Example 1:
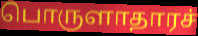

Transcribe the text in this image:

பொருளாதாரச்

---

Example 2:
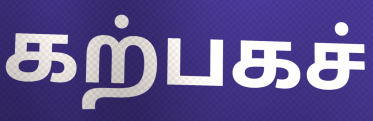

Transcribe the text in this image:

கற்பகச்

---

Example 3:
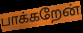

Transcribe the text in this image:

பாக்கறேன்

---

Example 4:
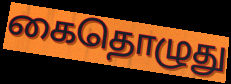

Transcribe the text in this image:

கைதொழுது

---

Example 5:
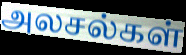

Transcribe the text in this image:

அலசல்கள்